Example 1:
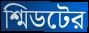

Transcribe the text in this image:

শ্মিডটের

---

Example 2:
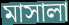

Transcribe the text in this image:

মাসালা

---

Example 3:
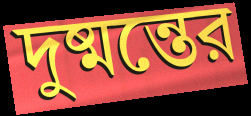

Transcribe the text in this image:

দুষ্মন্তের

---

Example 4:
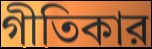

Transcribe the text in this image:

গীতিকার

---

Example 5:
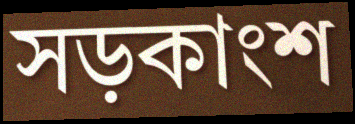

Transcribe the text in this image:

সড়কাংশ